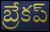
బ్రేకప్